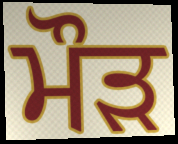
ਮੌਡ਼